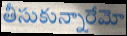
తీసుకున్నారేమో